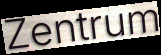
Zentrum